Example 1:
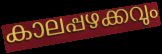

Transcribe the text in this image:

കാലപ്പഴക്കവും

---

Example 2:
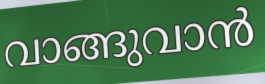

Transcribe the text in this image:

വാങ്ങുവാൻ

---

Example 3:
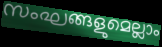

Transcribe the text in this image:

സംഘങ്ങളുമെല്ലാം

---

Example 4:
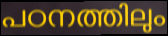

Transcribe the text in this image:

പഠനത്തിലും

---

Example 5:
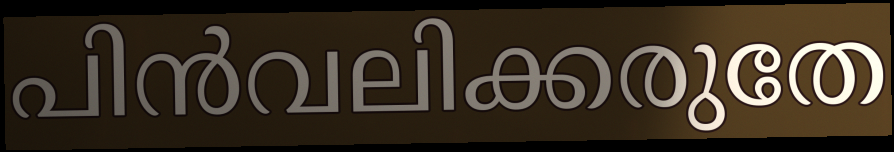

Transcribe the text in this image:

പിൻവലിക്കരുതേ